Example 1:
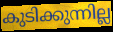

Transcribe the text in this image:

കുടിക്കുന്നില്ല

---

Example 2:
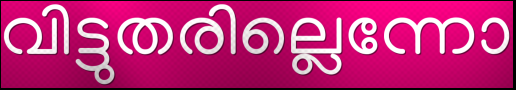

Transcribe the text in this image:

വിട്ടുതരില്ലെന്നോ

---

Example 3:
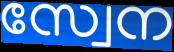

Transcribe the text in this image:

സ്വേന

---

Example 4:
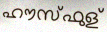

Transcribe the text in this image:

ഹൗസ്ഫുള്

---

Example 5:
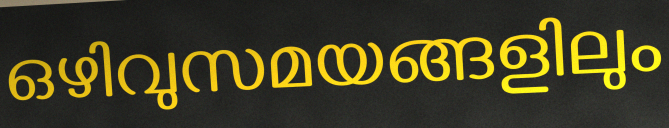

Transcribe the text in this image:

ഒഴിവുസമയങ്ങളിലും